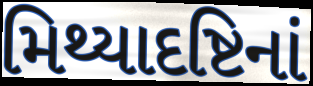
મિથ્યાદષ્ટિનાં